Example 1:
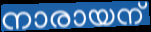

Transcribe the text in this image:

നാരായന്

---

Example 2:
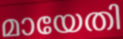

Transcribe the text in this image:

മായേതി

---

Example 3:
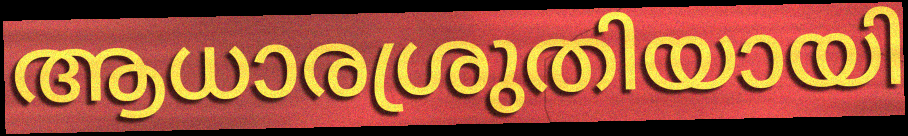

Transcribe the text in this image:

ആധാരശ്രുതിയായി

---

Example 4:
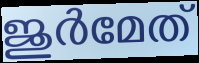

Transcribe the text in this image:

ജുർമേത്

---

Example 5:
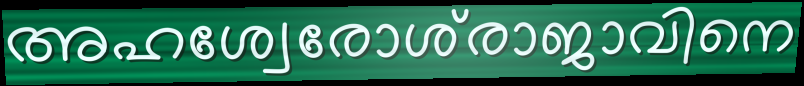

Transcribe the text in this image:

അഹശ്വേരോശ്‌രാജാവിനെ